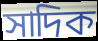
সাদিক